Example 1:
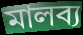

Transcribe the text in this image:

মালব্য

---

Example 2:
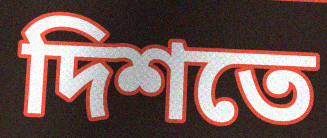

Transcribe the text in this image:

দিশতে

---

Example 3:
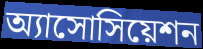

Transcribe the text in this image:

অ্যাসোসিয়েশন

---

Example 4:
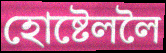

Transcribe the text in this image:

হোষ্টেললৈ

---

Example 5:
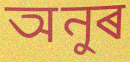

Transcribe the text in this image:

অনুৰ